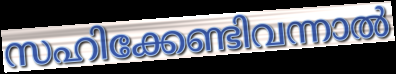
സഹിക്കേണ്ടിവന്നാൽ